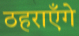
ठहराएँगे